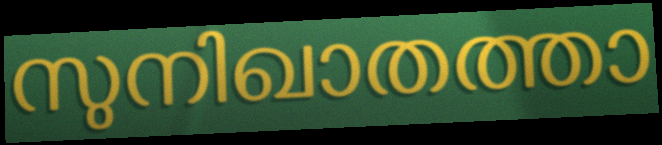
സുനിഖാതത്താ